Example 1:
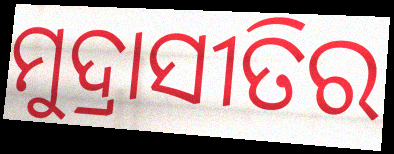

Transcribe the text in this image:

ମୁଦ୍ରାସୀତିର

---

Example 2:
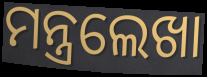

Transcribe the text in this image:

ମନ୍ତ୍ରଲେଖା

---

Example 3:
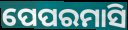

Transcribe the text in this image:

ପେପରମାସି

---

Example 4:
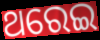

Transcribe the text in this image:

ଥରେଇ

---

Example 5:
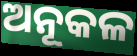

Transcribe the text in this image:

ଅନୂକଳ